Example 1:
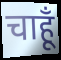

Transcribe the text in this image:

चाहूँ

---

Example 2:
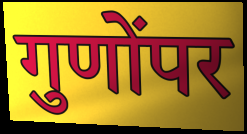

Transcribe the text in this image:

गुणोंपर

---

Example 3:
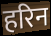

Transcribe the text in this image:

हरिन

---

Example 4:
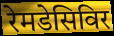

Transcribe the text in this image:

रेमडेसिविर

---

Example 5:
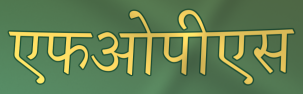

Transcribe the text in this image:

एफओपीएस